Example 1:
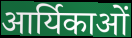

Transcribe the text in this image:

आर्यिकाओं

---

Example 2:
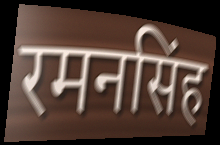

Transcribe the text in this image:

रमनसिंह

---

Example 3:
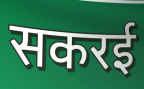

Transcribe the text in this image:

सकरई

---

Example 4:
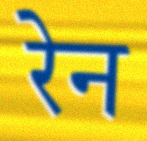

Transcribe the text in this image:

रेन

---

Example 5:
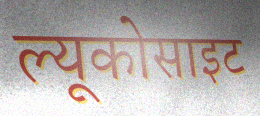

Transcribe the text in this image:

ल्यूकोसाइट